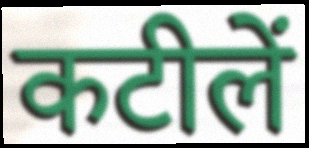
कटीलें